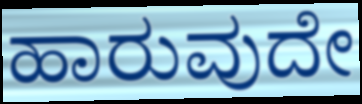
ಹಾರುವುದೇ